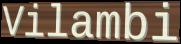
Vilambi